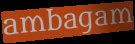
ambagam